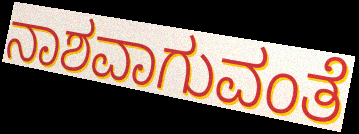
ನಾಶವಾಗುವಂತೆ